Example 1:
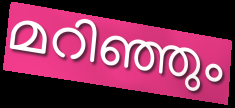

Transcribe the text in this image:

മറിഞ്ഞും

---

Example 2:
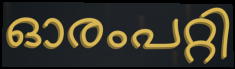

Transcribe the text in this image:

ഓരംപറ്റി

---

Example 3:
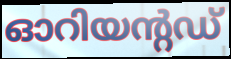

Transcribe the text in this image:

ഓറിയന്റഡ്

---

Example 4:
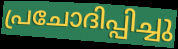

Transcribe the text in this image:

പ്രചോദിപ്പിച്ചു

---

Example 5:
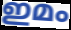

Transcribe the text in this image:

ഇമം